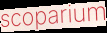
scoparium